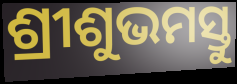
ଶ୍ରୀଶୁଭମସ୍ତୁ